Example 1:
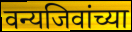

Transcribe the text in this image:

वन्यजिवांच्या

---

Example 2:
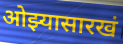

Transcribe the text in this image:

ओझ्यासारखं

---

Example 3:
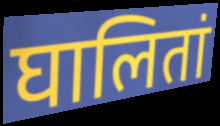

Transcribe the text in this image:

घालितां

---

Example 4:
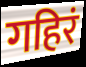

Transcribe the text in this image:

गहिरं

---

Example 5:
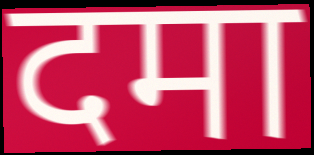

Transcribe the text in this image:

दमा